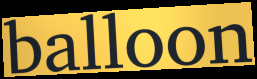
balloon